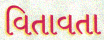
વિતાવતા